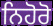
ਨਿਹੋਰੋ